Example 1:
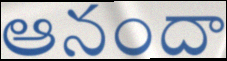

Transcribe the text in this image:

ఆనందా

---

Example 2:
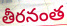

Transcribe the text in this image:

తీరనంత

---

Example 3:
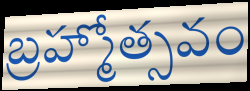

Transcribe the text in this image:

బ్రహ్మోత్సవం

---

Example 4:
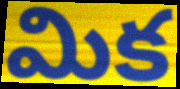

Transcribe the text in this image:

మిక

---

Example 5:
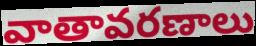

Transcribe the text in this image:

వాతావరణాలు